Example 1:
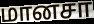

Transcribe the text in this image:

மானசா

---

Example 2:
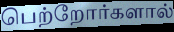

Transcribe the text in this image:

பெற்றோர்களால்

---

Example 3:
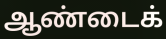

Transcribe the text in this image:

ஆண்டைக்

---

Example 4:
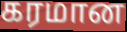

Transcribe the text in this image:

கரமான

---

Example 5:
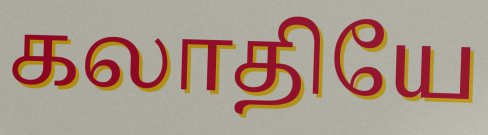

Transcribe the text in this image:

கலாதியே